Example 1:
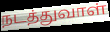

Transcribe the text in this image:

நடத்துவாள்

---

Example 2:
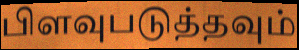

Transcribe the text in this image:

பிளவுபடுத்தவும்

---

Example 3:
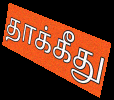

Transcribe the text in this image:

தாக்கீது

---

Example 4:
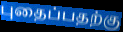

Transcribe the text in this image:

புதைப்பதற்கு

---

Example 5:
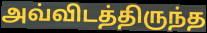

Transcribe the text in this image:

அவ்விடத்திருந்த